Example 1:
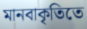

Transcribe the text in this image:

মানবাকৃতিতে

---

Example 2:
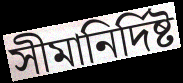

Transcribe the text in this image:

সীমানির্দিষ্ট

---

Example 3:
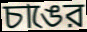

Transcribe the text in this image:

চাঙের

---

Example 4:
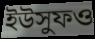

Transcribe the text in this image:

ইউসুফও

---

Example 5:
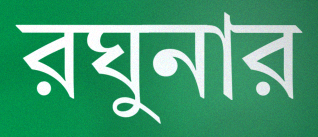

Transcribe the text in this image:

রঘুনার